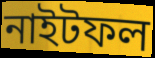
নাইটফল